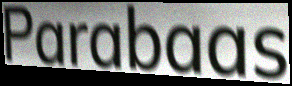
Parabaas